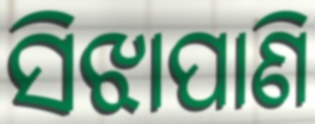
ସିଝାପାଣି